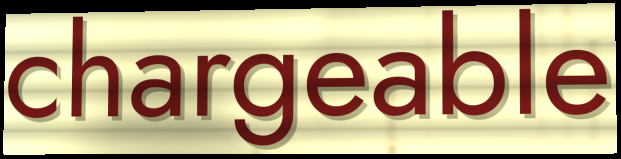
chargeable